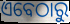
ଏବେଠାରୁ